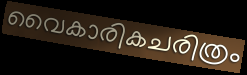
വൈകാരികചരിത്രം